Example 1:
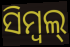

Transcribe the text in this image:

ସିମ୍ବଲ୍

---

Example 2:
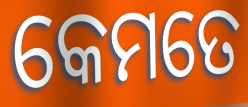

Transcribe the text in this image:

କେମତେ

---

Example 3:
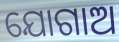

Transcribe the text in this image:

ଯୋଗାଅ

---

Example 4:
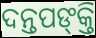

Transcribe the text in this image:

ଦନ୍ତପଙ୍‍କ୍ତି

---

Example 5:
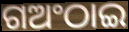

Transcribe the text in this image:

ଗଅଂଠାଇ